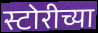
स्टोरीच्या